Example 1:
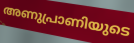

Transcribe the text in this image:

അണുപ്രാണിയുടെ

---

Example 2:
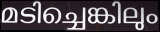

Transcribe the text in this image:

മടിച്ചെങ്കിലും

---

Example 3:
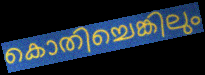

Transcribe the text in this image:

കൊതിച്ചെങ്കിലും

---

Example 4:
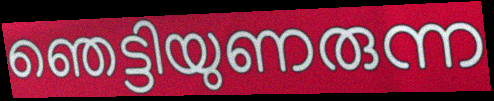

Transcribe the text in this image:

ഞെട്ടിയുണരുന്ന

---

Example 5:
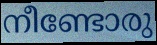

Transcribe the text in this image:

നീണ്ടോരു